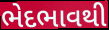
ભેદભાવથી